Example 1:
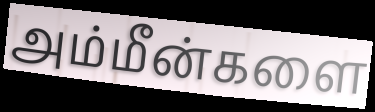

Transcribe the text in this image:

அம்மீன்களை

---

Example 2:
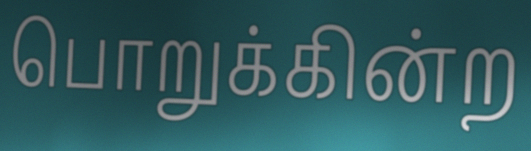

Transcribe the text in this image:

பொறுக்கின்ற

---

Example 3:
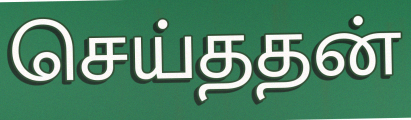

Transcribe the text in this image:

செய்ததன்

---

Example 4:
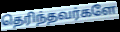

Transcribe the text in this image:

தெரிந்தவர்களே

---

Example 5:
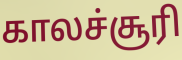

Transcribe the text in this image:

காலச்சூரி